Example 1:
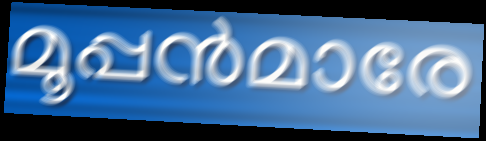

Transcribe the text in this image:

മൂപ്പൻമാരേ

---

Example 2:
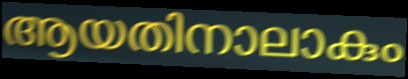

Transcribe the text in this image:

ആയതിനാലാകും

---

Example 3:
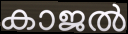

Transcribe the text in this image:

കാജൽ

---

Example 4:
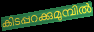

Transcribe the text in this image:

കിടപ്പറക്കുമുമ്പിൽ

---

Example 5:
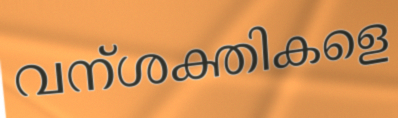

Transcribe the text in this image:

വന്ശക്തികളെ